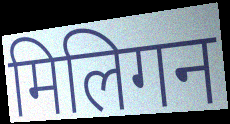
मिलिगन